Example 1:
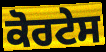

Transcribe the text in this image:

ਕੋਰਟੇਸ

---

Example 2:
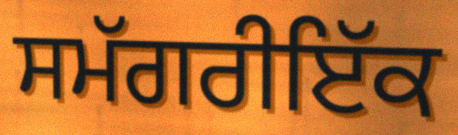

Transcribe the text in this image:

ਸਮੱਗਰੀਇੱਕ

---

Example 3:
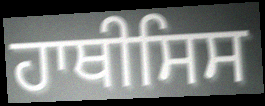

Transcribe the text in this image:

ਹਾਥੀਸਿਸ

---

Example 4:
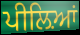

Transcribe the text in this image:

ਪੀਲ਼ਿਆਂ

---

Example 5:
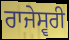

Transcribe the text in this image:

ਰਾਜੇਸ੍ਵਰੀ